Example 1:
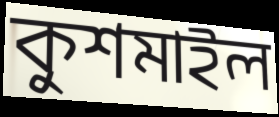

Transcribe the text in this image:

কুশমাইল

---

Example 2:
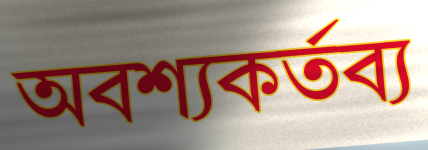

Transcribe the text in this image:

অবশ্যকর্তব্য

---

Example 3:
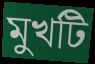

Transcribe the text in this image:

মুখটি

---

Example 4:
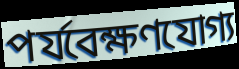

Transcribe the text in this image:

পর্যবেক্ষণযোগ্য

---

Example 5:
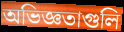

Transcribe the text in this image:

অভিজ্ঞতাগুলি